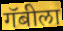
गॅबीला